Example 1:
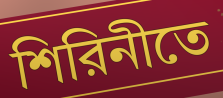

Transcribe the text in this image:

শিরিনীতে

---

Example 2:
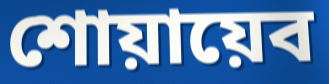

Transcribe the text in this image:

শোয়ায়েব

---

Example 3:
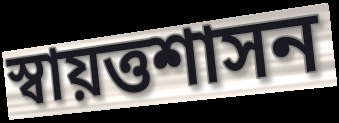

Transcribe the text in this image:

স্বায়ত্তশাসন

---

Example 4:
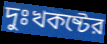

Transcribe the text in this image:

দুঃখকষ্টের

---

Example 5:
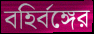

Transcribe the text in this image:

বহির্বঙ্গের